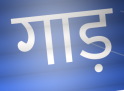
गाड़